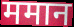
ममान